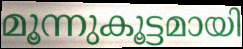
മൂന്നുകൂട്ടമായി